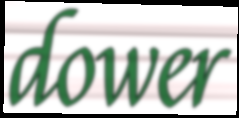
dower